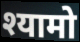
श्यामो